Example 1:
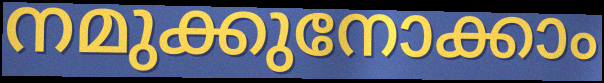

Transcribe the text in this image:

നമുക്കുനോക്കാം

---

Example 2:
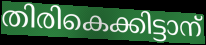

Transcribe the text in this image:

തിരികെക്കിട്ടാന്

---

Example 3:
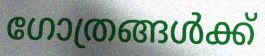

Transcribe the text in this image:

ഗോത്രങ്ങൾക്ക്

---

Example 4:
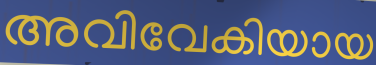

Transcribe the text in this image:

അവിവേകിയായ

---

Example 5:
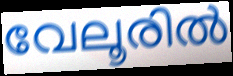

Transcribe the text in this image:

വേലൂരിൽ